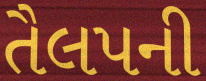
તૈલપની